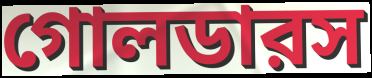
গোলডারস